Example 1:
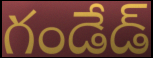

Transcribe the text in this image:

గండేడ్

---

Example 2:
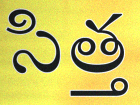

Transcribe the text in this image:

సిత్త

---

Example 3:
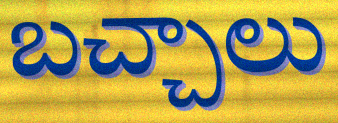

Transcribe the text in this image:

బచ్చాలు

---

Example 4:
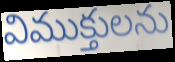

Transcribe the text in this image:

విముక్తులను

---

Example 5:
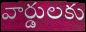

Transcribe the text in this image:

వార్డులకు